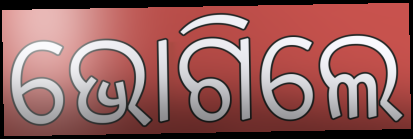
ଭୋଗିଲେ